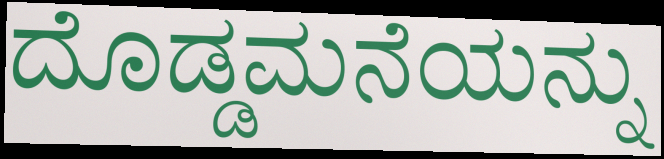
ದೊಡ್ಡಮನೆಯನ್ನು